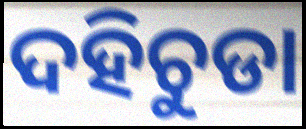
ଦହିଚୁଡା